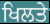
ਖਿਲਤੇ